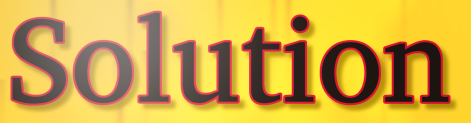
Solution